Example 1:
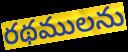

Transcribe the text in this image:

రథములను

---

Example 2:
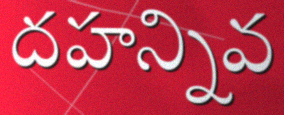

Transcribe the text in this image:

దహన్నివ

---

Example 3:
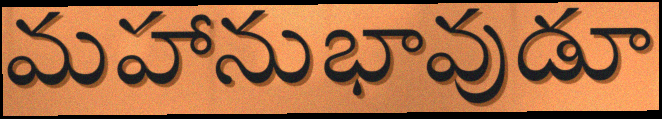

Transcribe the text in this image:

మహానుభావుడూ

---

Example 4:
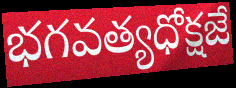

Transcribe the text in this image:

భగవత్యధోక్షజే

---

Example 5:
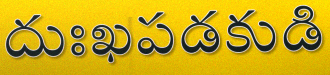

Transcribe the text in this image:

దుఃఖపడకుడి